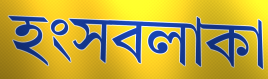
হংসবলাকা